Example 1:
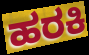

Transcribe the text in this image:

ಹರಕಿ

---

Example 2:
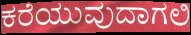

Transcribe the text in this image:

ಕರೆಯುವುದಾಗಲಿ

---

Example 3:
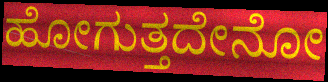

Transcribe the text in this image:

ಹೋಗುತ್ತದೇನೋ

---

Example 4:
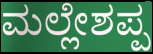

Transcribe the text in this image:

ಮಲ್ಲೇಶಪ್ಪ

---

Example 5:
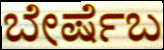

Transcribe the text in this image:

ಬೇರ್ಷೆಬ